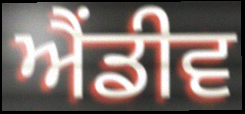
ਐਂਡੀਵ